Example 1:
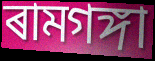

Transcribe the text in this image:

ৰামগঙ্গা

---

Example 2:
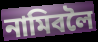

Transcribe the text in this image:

নামিবলৈ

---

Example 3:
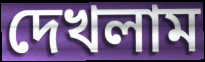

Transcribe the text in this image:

দেখলাম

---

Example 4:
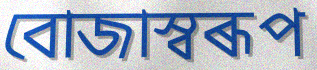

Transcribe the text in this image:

বোজাস্বৰূপ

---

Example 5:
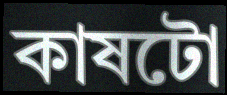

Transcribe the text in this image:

কাষটো